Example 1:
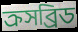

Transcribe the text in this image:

ক্রসব্রিড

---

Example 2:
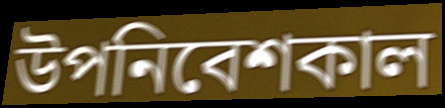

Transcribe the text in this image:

উপনিবেশকাল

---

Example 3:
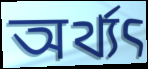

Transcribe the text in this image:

অর্থ্যৎ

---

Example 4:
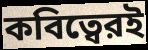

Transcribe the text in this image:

কবিত্বেরই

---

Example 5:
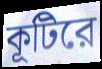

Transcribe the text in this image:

কূটিরে